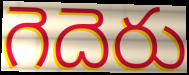
గెదెరు